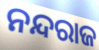
ନନ୍ଦରାଜ